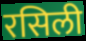
रसिली